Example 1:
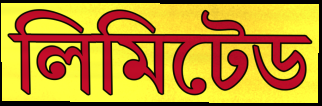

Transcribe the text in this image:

লিমিটেড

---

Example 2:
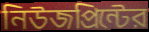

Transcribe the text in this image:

নিউজপ্রিন্টের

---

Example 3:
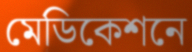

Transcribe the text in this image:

মেডিকেশনে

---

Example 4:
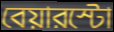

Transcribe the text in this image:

বেয়ারস্টো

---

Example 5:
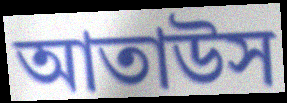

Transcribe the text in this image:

আতাউস